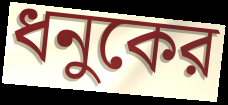
ধনুকের